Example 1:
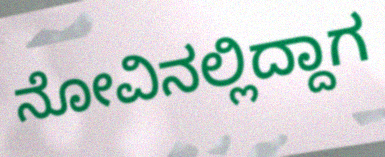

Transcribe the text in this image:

ನೋವಿನಲ್ಲಿದ್ದಾಗ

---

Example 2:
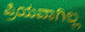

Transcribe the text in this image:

ಪ್ರಿಯವಾಗಿಲ್ಲ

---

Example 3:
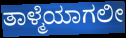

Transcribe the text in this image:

ತಾಳ್ಮೆಯಾಗಲೀ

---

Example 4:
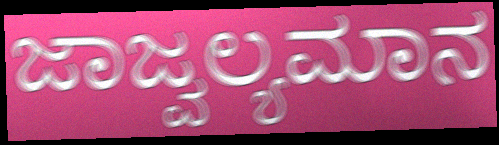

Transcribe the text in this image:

ಜಾಜ್ವಲ್ಯಮಾನ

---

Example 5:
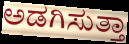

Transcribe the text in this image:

ಅಡಗಿಸುತ್ತಾ